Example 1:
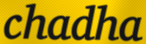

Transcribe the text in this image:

chadha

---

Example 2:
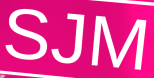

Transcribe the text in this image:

SJM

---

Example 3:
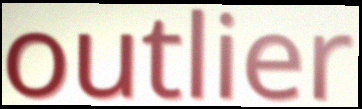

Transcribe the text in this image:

outlier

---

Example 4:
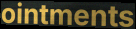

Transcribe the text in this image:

ointments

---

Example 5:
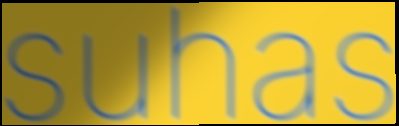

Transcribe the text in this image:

suhas